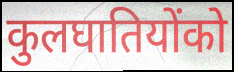
कुलघातियोंको